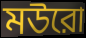
মউরো